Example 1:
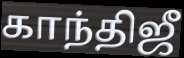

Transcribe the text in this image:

காந்திஜீ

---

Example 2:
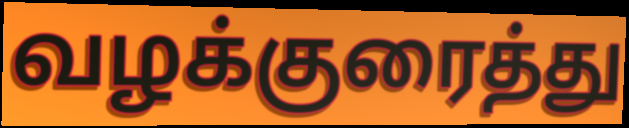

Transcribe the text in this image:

வழக்குரைத்து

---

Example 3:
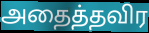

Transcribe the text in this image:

அதைத்தவிர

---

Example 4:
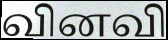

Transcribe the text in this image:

வினவி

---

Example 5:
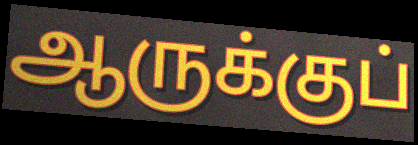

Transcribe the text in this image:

ஆருக்குப்